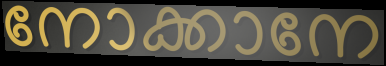
നോക്കാനേ